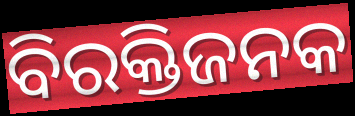
ବିରକ୍ତିଜନକ